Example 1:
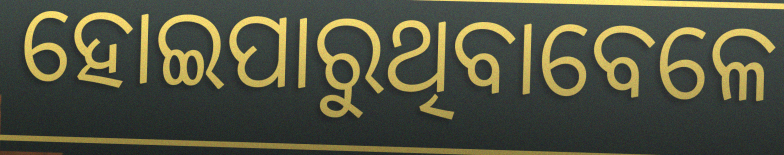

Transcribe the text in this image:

ହୋଇପାରୁଥିବାବେଳେ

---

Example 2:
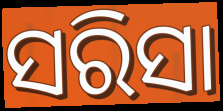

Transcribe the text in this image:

ସରିସା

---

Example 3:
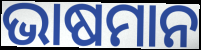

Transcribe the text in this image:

ଭାଷମାନ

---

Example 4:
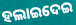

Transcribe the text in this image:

ହଲାଇଦେଇ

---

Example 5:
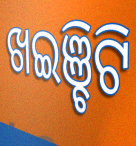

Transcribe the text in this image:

ଖଇଞ୍ଚିଟି